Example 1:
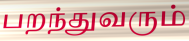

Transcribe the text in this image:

பறந்துவரும்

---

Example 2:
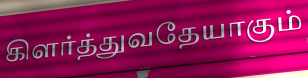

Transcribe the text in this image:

கிளர்த்துவதேயாகும்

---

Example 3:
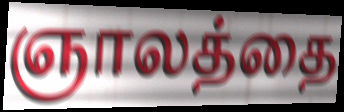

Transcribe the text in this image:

ஞாலத்தை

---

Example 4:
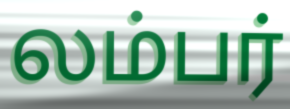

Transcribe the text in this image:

லம்பர்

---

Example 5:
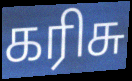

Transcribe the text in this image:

கரிசு